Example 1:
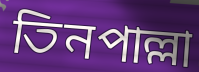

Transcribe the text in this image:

তিনপাল্লা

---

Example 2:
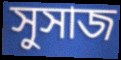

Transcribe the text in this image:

সুসাজ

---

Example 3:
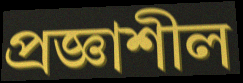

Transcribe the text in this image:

প্রজ্ঞাশীল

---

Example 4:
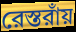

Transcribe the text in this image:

রেস্তরাঁয়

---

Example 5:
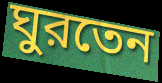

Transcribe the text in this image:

ঘুরতেন